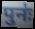
पुनः॑